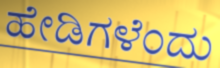
ಹೇಡಿಗಳೆಂದು